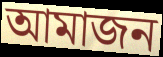
আমাজন